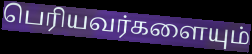
பெரியவர்களையும்